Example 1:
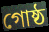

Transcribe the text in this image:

গোষ্ঠ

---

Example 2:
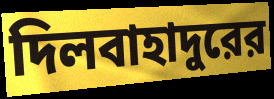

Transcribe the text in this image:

দিলবাহাদুরের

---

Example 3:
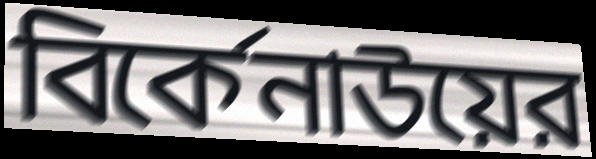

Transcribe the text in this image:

বির্কেনাউয়ের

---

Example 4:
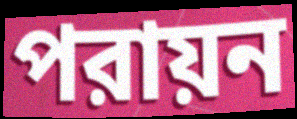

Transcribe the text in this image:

পরায়ন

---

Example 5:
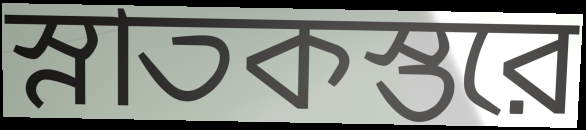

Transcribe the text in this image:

স্নাতকস্তরে